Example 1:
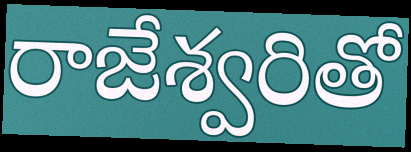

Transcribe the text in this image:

రాజేశ్వరితో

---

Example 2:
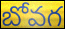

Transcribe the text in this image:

బోవగ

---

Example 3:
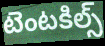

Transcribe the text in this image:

టెంటకిల్స్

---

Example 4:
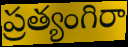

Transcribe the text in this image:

ప్రత్యంగిరా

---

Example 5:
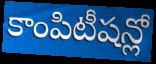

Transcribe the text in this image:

కాంపిటీషన్లో